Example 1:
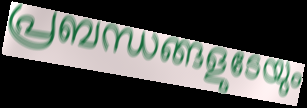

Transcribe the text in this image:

പ്രബന്ധങ്ങളുടേയും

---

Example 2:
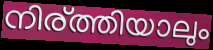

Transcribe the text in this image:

നിര്ത്തിയാലും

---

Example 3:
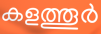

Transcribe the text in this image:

കളത്തൂർ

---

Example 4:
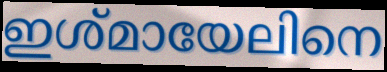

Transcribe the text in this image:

ഇശ്മായേലിനെ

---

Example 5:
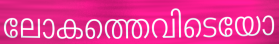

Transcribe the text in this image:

ലോകത്തെവിടെയോ